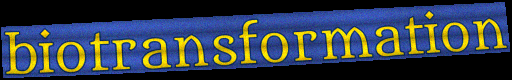
biotransformation